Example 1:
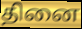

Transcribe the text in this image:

தினை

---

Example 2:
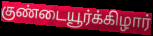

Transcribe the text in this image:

குண்டையூர்க்கிழார்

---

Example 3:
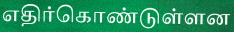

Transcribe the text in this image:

எதிர்கொண்டுள்ளன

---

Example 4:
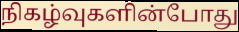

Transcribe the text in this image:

நிகழ்வுகளின்போது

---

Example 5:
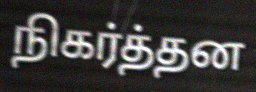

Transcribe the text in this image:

நிகர்த்தன